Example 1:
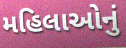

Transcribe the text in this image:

મહિલાઓનું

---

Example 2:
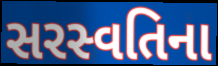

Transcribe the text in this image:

સરસ્વતિના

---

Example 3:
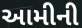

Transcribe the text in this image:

આમીની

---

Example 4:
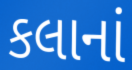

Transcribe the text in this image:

કલાનાં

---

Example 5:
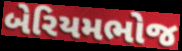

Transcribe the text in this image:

બેરિયમભોજ